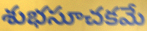
శుభసూచకమే